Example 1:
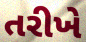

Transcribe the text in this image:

તરીખે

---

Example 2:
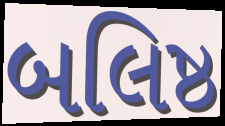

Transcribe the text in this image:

બલિષ્ઠ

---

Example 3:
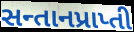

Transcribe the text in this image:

સન્તાનપ્રાપ્તી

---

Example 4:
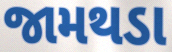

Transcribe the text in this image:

જામથડા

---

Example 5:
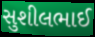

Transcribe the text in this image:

સુશીલભાઈ